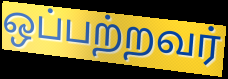
ஒப்பற்றவர்